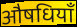
औषधियाँ